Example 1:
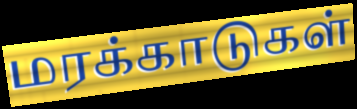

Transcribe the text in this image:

மரக்காடுகள்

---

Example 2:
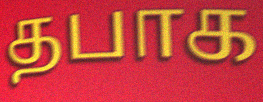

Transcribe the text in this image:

தபாக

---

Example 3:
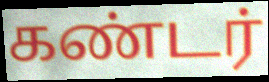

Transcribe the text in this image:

கண்டர்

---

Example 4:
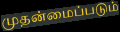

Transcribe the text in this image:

முதன்மைப்படும்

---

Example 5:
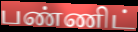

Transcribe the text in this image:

பண்ணிட்